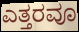
ಎತ್ತರವೂ